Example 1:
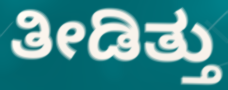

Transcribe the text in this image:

ತೀಡಿತ್ತು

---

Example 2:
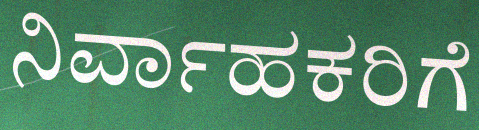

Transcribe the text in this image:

ನಿರ್ವಾಹಕರಿಗೆ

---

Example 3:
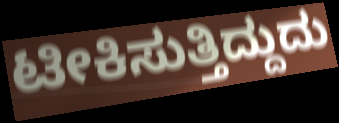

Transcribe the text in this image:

ಟೀಕಿಸುತ್ತಿದ್ದುದು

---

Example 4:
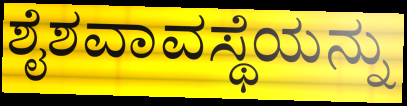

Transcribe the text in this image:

ಶೈಶವಾವಸ್ಥೆಯನ್ನು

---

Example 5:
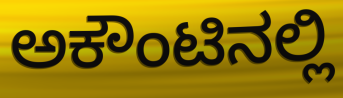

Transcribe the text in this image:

ಅಕೌಂಟಿನಲ್ಲಿ